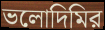
ভলোদিমির